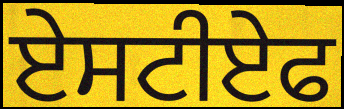
ਏਸਟੀਏਫ